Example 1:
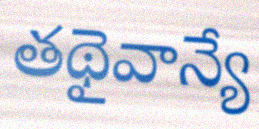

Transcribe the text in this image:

తథైవాన్యే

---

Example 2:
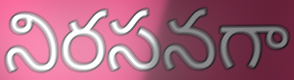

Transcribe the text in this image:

నిరసనగా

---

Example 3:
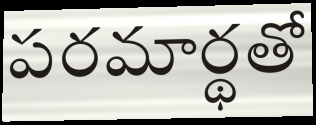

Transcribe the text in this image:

పరమార్థతో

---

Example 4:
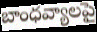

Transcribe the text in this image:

బాంధవ్యాలపై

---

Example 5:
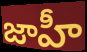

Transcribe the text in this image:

జాహీ